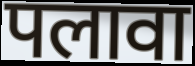
पलावा